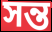
সন্ত